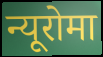
न्यूरोमा